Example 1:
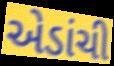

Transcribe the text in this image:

એડાંચી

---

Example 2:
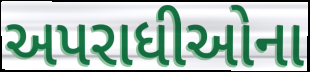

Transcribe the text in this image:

અપરાધીઓના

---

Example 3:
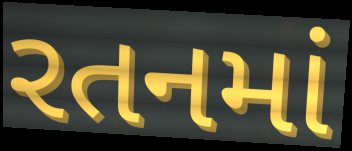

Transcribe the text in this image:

રતનમાં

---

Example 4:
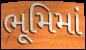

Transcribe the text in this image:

ભૂમિમાં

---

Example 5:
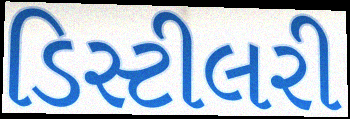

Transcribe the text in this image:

ડિસ્ટીલરી